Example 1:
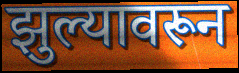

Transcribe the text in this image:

झुल्यावरून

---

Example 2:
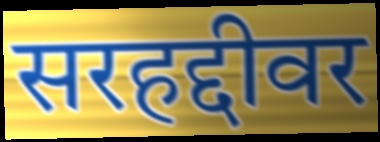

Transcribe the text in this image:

सरहद्दीवर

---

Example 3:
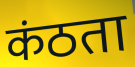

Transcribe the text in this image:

कंठता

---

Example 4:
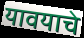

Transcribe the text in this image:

यावयाचे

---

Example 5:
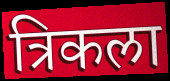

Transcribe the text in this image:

त्रिकला